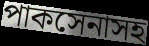
পাকসেনাসহ